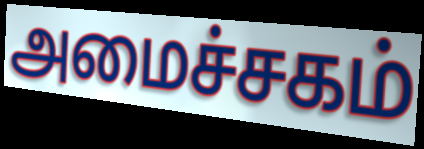
அமைச்சகம்